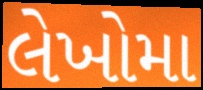
લેખોમા